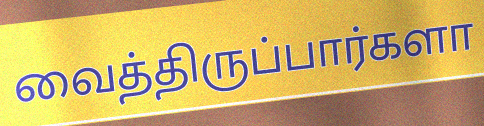
வைத்திருப்பார்களா